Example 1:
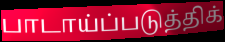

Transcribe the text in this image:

பாடாய்ப்படுத்திக்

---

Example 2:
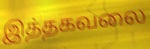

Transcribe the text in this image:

இத்தகவலை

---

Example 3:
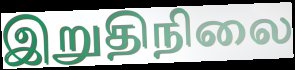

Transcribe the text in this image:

இறுதிநிலை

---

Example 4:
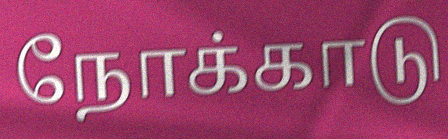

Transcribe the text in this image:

நோக்காடு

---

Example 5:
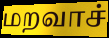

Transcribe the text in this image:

மறவாச்